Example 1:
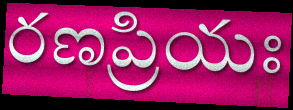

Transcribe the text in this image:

రణప్రియః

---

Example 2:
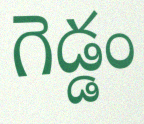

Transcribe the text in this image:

గెడ్డం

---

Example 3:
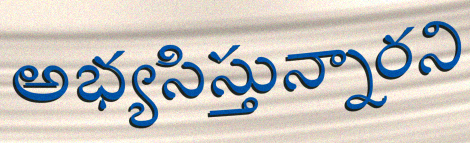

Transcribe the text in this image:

అభ్యసిస్తున్నారని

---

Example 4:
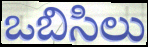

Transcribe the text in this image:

ఒబిసిలు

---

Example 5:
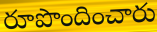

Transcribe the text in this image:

రూపొందించారు